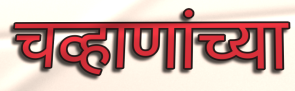
चव्हाणांच्या